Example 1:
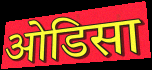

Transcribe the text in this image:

ओडिसा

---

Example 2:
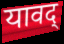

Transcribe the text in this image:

यावद्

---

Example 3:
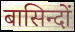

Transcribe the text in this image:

बासिन्दों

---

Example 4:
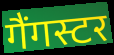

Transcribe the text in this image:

गैंगस्‍टर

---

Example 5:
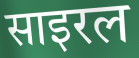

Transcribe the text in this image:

साइरल